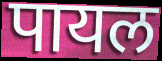
पायल